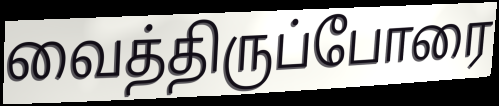
வைத்திருப்போரை